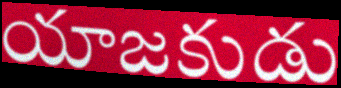
యాజకుడు